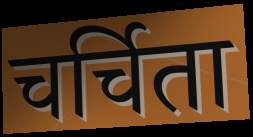
चर्चिता